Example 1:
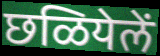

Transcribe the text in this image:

छळियेलें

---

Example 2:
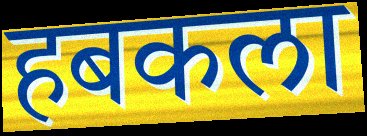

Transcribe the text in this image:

हबकला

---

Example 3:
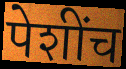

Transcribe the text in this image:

पेशींच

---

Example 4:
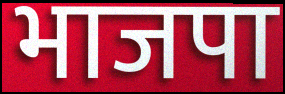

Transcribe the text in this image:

भाजपा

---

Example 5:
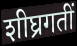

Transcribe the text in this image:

शीघ्रगतीं